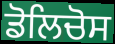
ਡੋਲਿਚੋਸ